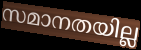
സമാനതയില്ല